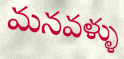
మనవళ్ళు